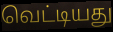
வெட்டியது